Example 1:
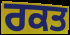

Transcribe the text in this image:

ਰਕਤ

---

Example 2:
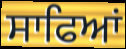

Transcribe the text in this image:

ਸਾਫਿਆਂ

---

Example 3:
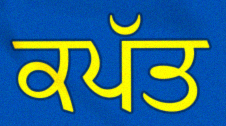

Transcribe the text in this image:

ਕਪੱਤ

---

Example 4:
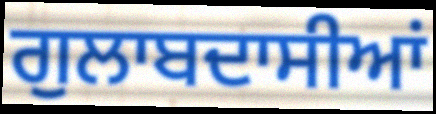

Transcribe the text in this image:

ਗੁਲਾਬਦਾਸੀਆਂ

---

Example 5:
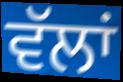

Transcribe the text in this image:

ਵੱਲਾਂ